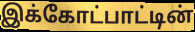
இக்கோட்பாட்டின்